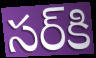
సర్‌కి